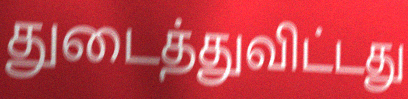
துடைத்துவிட்டது